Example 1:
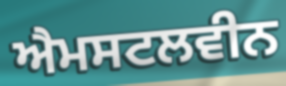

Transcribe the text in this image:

ਐਮਸਟਲਵੀਨ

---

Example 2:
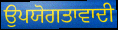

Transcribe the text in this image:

ਉਪਯੋਗਤਾਵਾਦੀ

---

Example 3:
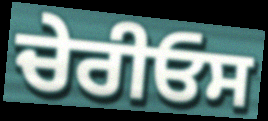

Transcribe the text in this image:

ਚੇਰੀਓਸ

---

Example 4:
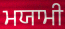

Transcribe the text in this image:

ਮਯਾਮੀ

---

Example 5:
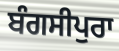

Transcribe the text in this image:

ਬੰਗਸੀਪੁਰਾ